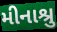
મીનાશ્રુ